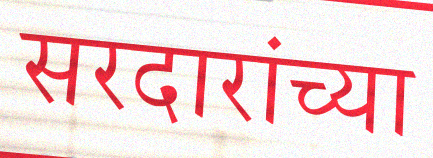
सरदारांच्या